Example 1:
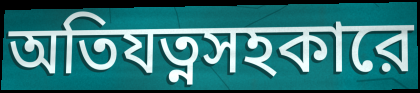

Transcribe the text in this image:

অতিযত্নসহকারে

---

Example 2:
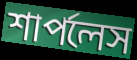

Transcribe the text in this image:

শার্পলেস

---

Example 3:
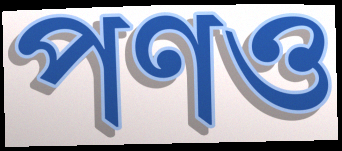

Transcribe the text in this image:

পণও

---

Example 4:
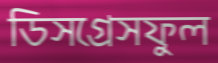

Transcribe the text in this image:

ডিসগ্রেসফুল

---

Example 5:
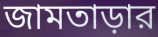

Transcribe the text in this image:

জামতাড়ার